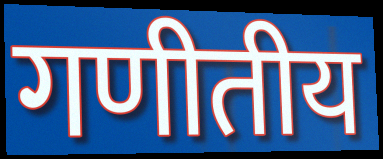
गणीतीय